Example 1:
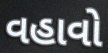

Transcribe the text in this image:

વહાવો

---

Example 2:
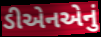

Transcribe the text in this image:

ડીએનએનું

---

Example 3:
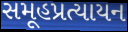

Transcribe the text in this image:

સમૂહપ્રત્યાયન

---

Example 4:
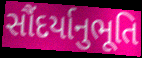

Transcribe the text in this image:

સૌંદર્યાનુભૂતિ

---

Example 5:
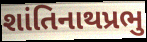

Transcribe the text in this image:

શાંતિનાથપ્રભુ